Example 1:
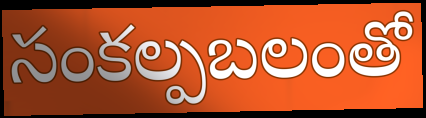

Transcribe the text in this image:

సంకల్పబలంతో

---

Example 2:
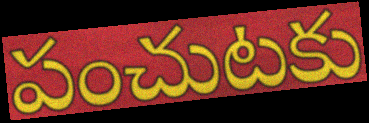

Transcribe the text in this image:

పంచుటకు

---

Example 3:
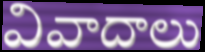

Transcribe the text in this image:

వివాదాలు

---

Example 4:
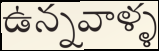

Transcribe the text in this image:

ఉన్నవాళ్ళ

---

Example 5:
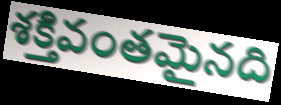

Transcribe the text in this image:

శక్తివంతమైనది